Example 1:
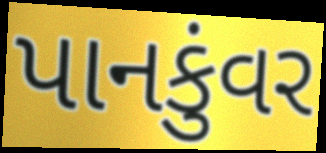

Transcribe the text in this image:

પાનકુંવર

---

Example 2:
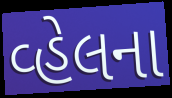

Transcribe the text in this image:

વ્હેલના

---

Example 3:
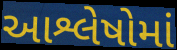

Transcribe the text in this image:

આશ્લેષોમાં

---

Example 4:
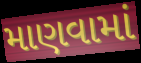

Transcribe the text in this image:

માણવામાં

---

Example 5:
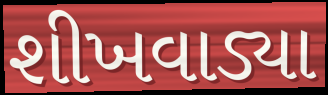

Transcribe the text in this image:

શીખવાડ્યા